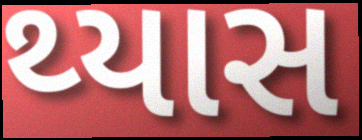
થ્યાસ